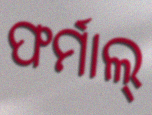
ଫର୍ମାଲ୍